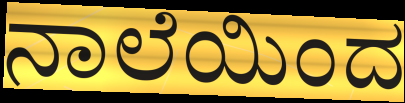
ನಾಲೆಯಿಂದ